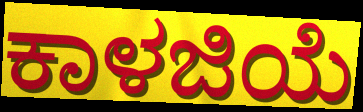
ಕಾಳಜಿಯೆ